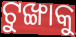
ଟୁଙ୍ଖାକୁ